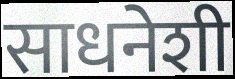
साधनेशी